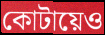
কোটায়েও